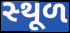
સ્‍થૂળ